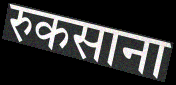
रुकसाना